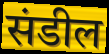
संडील